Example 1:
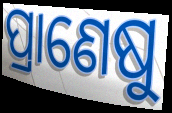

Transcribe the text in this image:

ପ୍ରାଣେଷୁ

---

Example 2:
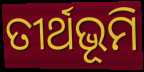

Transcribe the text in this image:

ତୀର୍ଥଭୂମି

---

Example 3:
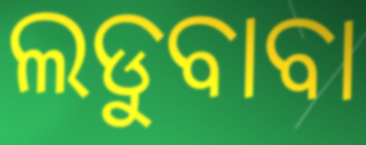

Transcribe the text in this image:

ଲଡୁବାବା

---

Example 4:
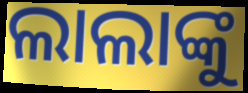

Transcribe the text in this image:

ଲାଲାଙ୍କୁ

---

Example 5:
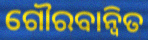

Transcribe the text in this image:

ଗୌରବାନ୍ୱିତ